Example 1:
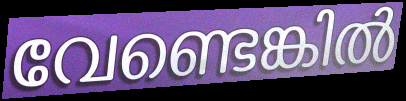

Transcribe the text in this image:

വേണ്ടെങ്കിൽ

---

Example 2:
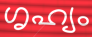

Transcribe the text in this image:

ഗൃഹ്യം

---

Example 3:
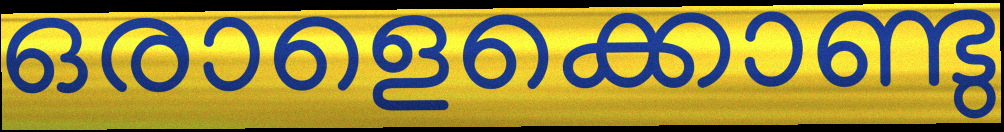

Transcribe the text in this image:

ഒരാളെക്കൊണ്ടു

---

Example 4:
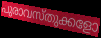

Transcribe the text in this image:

പുരാവസ്തുക്കളോ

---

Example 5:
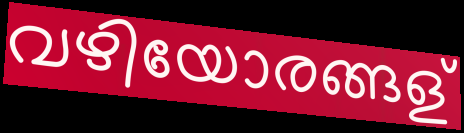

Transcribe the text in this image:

വഴിയോരങ്ങള്